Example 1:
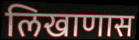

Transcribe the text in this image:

लिखाणास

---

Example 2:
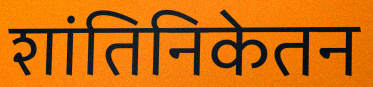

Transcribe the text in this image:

शांतिनिकेतन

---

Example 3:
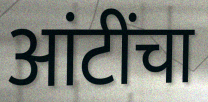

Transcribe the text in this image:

आंटींचा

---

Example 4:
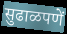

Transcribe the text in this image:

सुढाळपणें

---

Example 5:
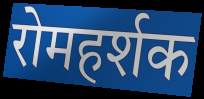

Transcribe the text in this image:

रोमहर्शक